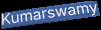
Kumarswamy